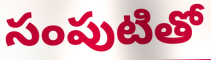
సంపుటితో